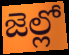
జెల్లో